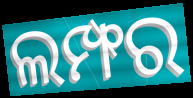
ଲମ୍ଫର